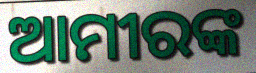
ଆମୀରଙ୍କ